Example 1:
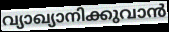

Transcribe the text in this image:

വ്യാഖ്യാനിക്കുവാൻ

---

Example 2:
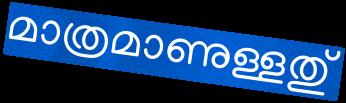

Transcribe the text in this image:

മാത്രമാണുള്ളതു്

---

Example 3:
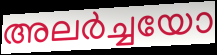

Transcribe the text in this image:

അലർച്ചയോ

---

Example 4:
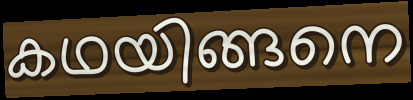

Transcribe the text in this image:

കഥയിങ്ങനെ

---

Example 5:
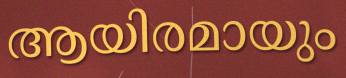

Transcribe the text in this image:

ആയിരമായും